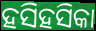
ହସିହସିକା